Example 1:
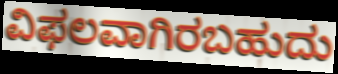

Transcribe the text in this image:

ವಿಫಲವಾಗಿರಬಹುದು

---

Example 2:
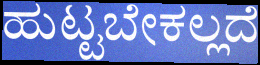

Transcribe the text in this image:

ಹುಟ್ಟಬೇಕಲ್ಲದೆ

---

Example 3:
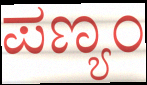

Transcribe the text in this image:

ಪಣ್ಯಂ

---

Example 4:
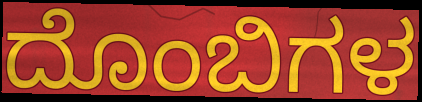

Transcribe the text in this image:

ದೊಂಬಿಗಳ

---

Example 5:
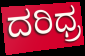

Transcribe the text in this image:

ದರಿಧ್ರ